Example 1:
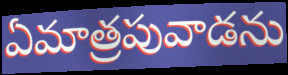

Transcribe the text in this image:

ఏమాత్రపువాడను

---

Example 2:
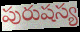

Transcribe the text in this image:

పురుషస్య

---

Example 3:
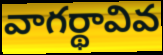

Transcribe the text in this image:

వాగర్థావివ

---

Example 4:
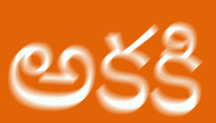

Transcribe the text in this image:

అకకి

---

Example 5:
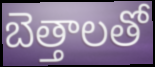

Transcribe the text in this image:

బెత్తాలతో